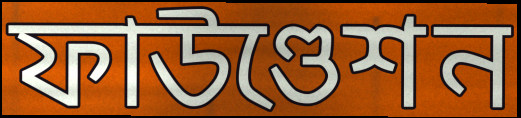
ফাউণ্ডেশন